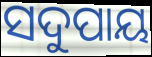
ସଦୁପାୟ